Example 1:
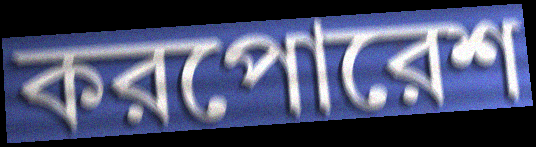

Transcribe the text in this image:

করপোরেশ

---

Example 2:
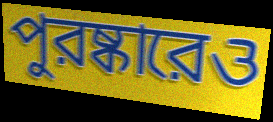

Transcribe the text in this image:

পুরষ্কারেও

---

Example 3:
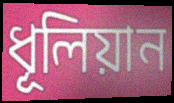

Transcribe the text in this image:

ধূলিয়ান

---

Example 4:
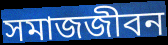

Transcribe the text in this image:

সমাজজীবন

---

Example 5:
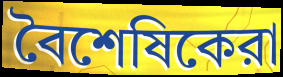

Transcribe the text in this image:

বৈশেষিকেরা